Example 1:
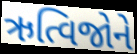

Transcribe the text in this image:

ઋત્વિજોને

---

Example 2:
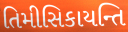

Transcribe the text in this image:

તિમીસિકાયન્તિ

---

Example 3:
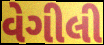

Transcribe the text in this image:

વેગીલી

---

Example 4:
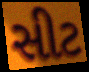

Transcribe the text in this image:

સીટ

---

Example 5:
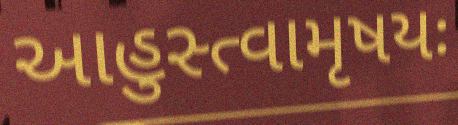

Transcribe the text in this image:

આહુસ્ત્વામૃષયઃ